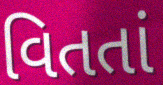
વિતતાં